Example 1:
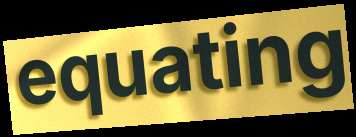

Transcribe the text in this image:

equating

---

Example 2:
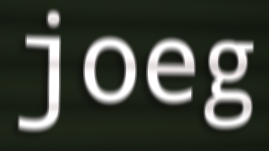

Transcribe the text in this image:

joeg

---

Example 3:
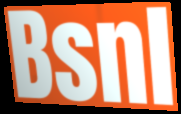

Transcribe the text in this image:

Bsnl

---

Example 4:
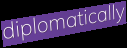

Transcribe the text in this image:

diplomatically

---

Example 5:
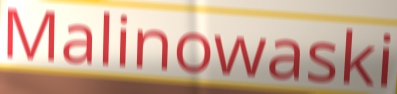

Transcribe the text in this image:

Malinowaski